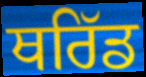
ਥਰਿੱਡ